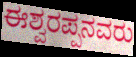
ಈಶ್ವರಪ್ಪನವರು